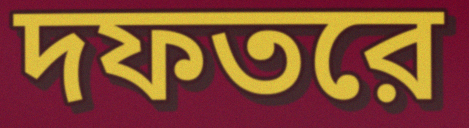
দফতরে